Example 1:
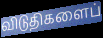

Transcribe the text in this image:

விடுதிகளைப்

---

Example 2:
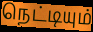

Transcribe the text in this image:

நெட்டியும்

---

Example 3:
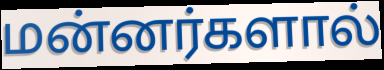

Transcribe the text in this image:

மன்னர்களால்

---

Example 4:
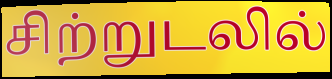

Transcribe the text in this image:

சிற்றுடலில்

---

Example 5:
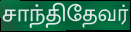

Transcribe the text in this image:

சாந்திதேவர்